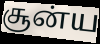
சூன்ய